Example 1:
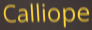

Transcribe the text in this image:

Calliope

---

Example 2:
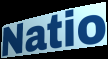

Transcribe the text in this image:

Natio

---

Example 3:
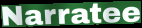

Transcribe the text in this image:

Narratee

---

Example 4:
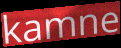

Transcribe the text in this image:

kamne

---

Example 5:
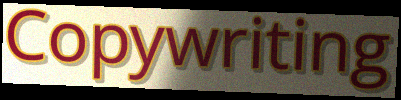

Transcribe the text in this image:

Copywriting